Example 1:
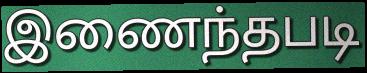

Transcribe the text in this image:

இணைந்தபடி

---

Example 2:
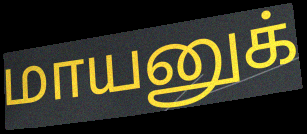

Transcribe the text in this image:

மாயனுக்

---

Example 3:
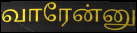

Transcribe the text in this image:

வாரேன்னு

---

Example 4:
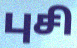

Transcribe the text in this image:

புசி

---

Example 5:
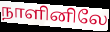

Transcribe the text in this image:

நாளினிலே